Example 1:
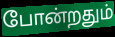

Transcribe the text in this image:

போன்றதும்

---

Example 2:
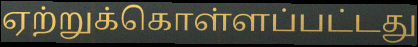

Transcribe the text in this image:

ஏற்றுக்கொள்ளப்பட்டது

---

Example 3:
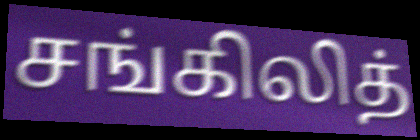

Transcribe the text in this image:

சங்கிலித்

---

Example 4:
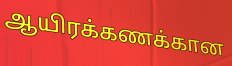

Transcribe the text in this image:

ஆயிரக்கணக்கான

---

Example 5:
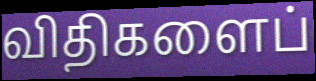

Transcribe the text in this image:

விதிகளைப்